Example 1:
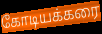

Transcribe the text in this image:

கோடியக்கரை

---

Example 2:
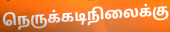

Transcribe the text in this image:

நெருக்கடிநிலைக்கு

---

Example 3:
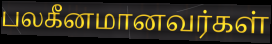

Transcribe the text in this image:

பலகீனமானவர்கள்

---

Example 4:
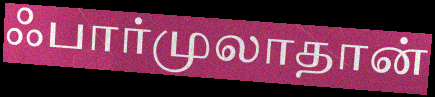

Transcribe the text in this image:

ஃபார்முலாதான்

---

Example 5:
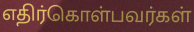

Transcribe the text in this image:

எதிர்கொள்பவர்கள்